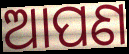
ଆପଣ